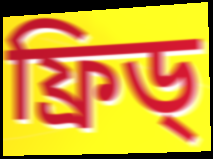
ফ্ৰিড্